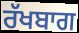
ਰੱਖਬਾਗ